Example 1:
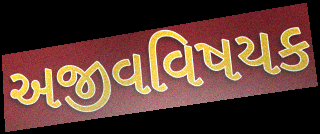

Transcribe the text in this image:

અજીવવિષયક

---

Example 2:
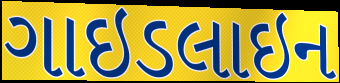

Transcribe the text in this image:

ગાઇડલાઇન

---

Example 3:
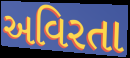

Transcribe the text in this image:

અવિરતા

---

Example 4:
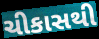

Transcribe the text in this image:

ચીકાસથી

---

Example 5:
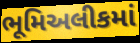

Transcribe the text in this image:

ભૂમિઅલીકમાં